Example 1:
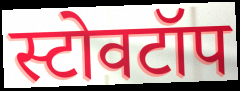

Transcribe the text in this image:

स्टोवटॉप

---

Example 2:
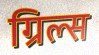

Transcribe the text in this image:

ग्रिल्स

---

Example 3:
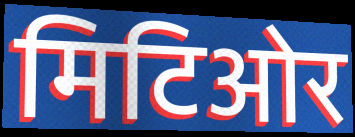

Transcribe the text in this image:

मिटिओर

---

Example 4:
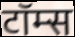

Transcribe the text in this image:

टॉम्स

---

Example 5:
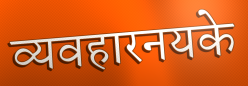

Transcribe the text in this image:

व्यवहारनयके